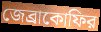
জেব্রাকোফির